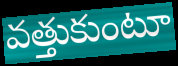
వత్తుకుంటూ